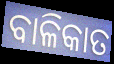
ବାଳିକାତ